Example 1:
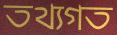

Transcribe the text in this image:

তথ্যগত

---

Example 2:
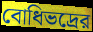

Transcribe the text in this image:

বোধিভদ্রের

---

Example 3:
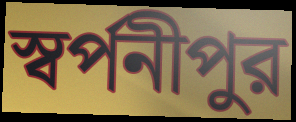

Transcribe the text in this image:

স্বর্পনীপুর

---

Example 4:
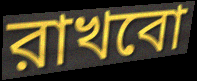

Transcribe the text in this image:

রাখবো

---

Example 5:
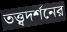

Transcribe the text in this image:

তত্ত্বদর্শনের